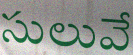
సులువే